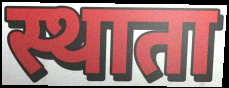
स्थाता